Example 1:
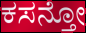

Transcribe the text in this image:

ಕಸನ್ತೋ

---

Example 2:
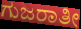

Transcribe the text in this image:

ಗುಜರಾತೀ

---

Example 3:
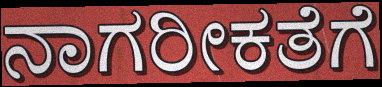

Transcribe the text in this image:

ನಾಗರೀಕತೆಗೆ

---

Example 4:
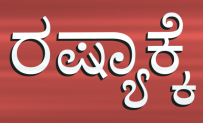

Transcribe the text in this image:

ರಷ್ಯಾಕ್ಕೆ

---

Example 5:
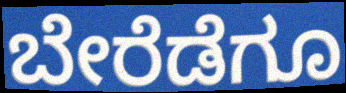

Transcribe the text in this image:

ಬೇರೆಡೆಗೂ